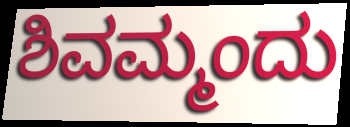
ಶಿವಮ್ಮಂದು